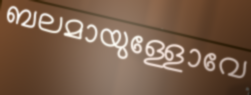
ബലമായുള്ളോവേ